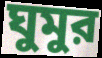
ঘুমুর